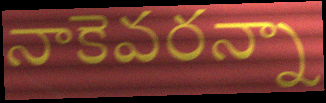
నాకెవరన్నా